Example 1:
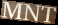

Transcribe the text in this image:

MNT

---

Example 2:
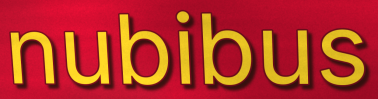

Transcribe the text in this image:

nubibus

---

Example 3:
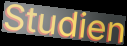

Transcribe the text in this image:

Studien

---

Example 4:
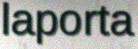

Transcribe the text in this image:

laporta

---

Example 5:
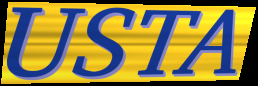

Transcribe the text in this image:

USTA